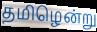
தமிழென்று